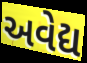
અવેદ્ય